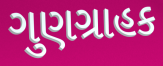
ગુણગ્રાહક